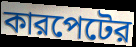
কারপেটের